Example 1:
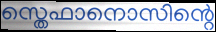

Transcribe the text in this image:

സ്തെഫാനൊസിന്റെ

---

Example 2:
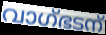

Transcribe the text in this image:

വാഗ്ഭടന്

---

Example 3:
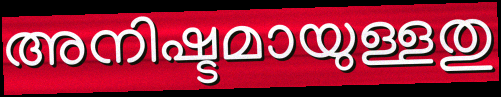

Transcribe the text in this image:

അനിഷ്ടമായുള്ളതു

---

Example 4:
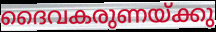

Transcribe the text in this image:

ദൈവകരുണയ്ക്കു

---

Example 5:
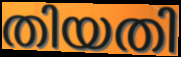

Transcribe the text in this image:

തിയതി